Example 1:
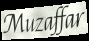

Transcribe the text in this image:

Muzaffar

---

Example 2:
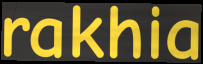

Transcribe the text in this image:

rakhia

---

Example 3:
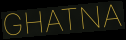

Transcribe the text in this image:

GHATNA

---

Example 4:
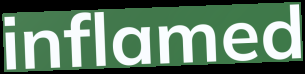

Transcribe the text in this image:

inflamed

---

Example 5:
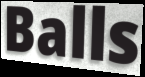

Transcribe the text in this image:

Balls